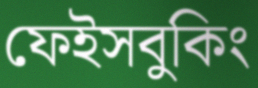
ফেইসবুকিং